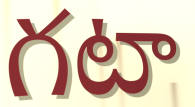
గటా